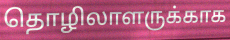
தொழிலாளருக்காக